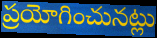
ప్రయోగించునట్లు